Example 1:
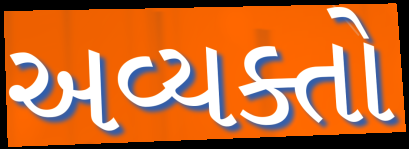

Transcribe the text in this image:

અવ્યક્તો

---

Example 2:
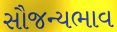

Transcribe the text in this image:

સૌજન્યભાવ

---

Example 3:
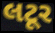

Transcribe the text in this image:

લટૂર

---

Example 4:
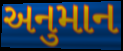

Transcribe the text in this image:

અનુમાન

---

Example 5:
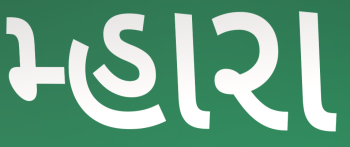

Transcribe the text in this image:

મ્હારા